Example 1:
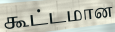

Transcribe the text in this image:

கூட்டமான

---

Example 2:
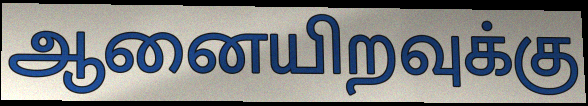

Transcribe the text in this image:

ஆனையிறவுக்கு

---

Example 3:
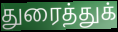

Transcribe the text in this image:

துரைத்துக்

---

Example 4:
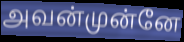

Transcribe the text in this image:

அவன்முன்னே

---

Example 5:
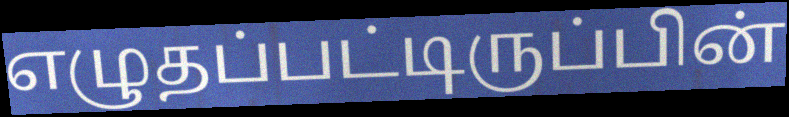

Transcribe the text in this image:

எழுதப்பட்டிருப்பின்